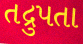
તદ્રુપતા